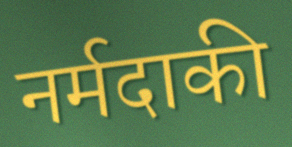
नर्मदाकी